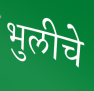
भुलीचे